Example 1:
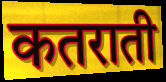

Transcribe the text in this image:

कतराती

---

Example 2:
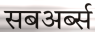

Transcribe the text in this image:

सबअर्ब्स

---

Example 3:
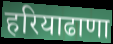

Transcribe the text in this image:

हरियाढाणा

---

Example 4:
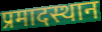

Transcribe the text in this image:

प्रमादस्थान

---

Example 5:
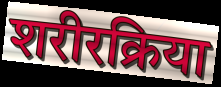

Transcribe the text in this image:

शरीरक्रिया